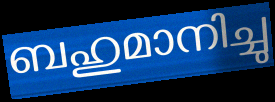
ബഹുമാനിച്ചു